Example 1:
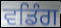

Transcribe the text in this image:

ਵਡਿੰਗ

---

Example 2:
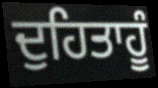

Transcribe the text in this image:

ਦੁਹਿਤਾਹੂੰ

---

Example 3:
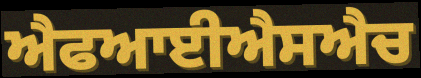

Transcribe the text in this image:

ਐਫਆਈਐਸਐਚ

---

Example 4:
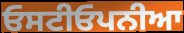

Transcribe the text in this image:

ਓਸਟੀਓਪਨੀਆ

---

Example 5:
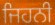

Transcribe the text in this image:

ਜਿਹਨੀ